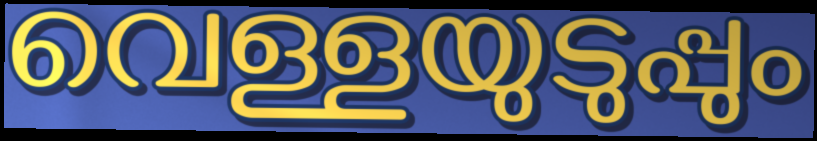
വെള്ളയുടുപ്പും